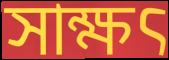
সাক্ষৎ